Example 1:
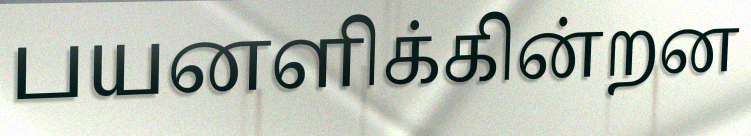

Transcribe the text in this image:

பயனளிக்கின்றன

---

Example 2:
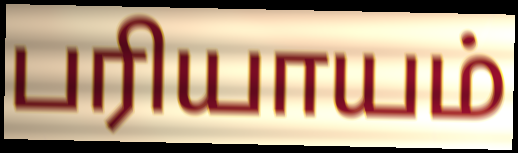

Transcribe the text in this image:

பரியாயம்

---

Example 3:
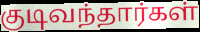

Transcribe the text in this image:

குடிவந்தார்கள்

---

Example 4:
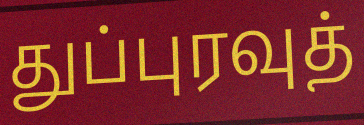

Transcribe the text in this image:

துப்புரவுத்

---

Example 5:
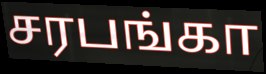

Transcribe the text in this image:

சரபங்கா